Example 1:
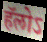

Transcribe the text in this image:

हॅलोऽ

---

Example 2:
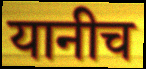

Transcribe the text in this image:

यानीच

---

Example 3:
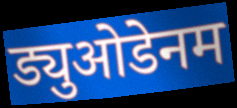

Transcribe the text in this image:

ड्युओडेनम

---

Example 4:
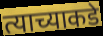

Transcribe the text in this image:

त्याच्याकडे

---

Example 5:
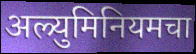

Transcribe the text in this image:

अल्युमिनियमचा